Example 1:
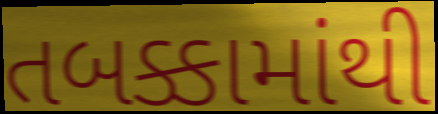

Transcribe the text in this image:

તબક્કામાંથી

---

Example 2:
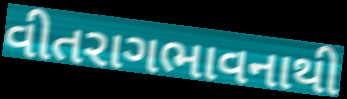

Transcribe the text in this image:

વીતરાગભાવનાથી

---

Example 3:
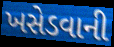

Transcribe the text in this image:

ખસેડવાની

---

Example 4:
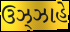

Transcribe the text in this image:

ઉઝ્ઝાહે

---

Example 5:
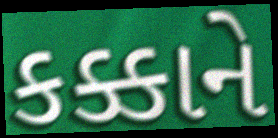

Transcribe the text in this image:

કક્કાને